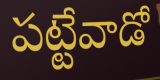
పట్టేవాడో